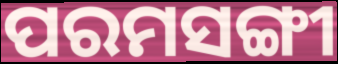
ପରମସଙ୍ଗୀ